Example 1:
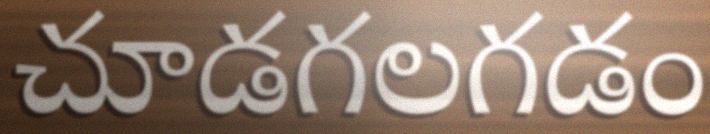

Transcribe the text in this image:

చూడగలగడం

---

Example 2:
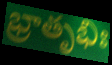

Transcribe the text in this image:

భ్రాతృభిః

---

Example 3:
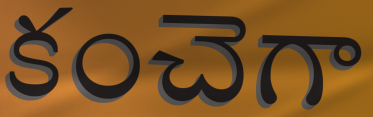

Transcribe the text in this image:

కంచెగా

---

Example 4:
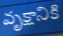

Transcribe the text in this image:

వృక్షానికి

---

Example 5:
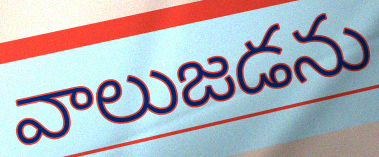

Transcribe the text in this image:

వాలుజడను